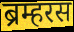
ब्रम्हरस